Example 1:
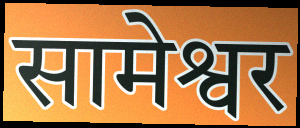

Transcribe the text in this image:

सामेश्वर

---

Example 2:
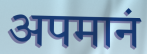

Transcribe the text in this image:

अपमानं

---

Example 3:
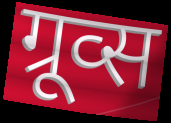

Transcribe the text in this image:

ग्रूव्स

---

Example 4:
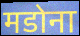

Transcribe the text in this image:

मडोना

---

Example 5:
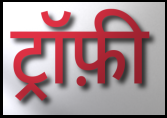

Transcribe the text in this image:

ट्रॉफ़ी